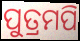
ପୁତ୍ରମପି